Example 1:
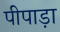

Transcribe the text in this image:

पीपाड़ा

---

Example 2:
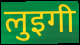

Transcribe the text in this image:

लुइगी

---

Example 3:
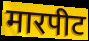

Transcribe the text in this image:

मारपीट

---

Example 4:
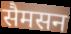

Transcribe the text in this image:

सैमसन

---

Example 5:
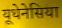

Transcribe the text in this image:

यूथेनेसिया